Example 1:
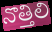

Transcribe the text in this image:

నొత్తిలి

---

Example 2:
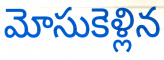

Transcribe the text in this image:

మోసుకెళ్లిన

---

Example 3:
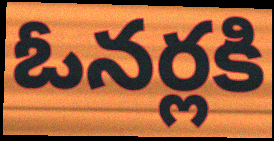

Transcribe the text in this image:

ఓనర్లకి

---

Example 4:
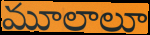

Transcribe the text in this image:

మూలాలూ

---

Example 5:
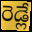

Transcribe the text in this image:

రెడ్లే